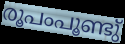
രൂപംപൂണ്ടു്